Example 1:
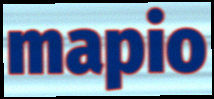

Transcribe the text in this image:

mapio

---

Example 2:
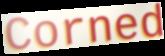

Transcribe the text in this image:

Corned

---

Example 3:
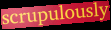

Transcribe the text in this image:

scrupulously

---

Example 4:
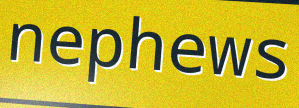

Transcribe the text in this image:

nephews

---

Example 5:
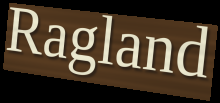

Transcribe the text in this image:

Ragland